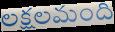
లక్షలమంది